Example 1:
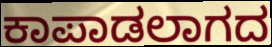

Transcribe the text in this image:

ಕಾಪಾಡಲಾಗದ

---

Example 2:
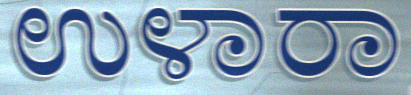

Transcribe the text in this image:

ಉಳಾರಾ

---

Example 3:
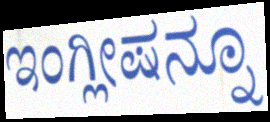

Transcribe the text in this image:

ಇಂಗ್ಲೀಷನ್ನೂ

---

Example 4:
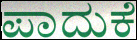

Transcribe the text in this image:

ಪಾದುಕೆ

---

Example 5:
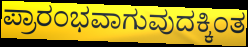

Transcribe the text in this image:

ಪ್ರಾರಂಭವಾಗುವುದಕ್ಕಿಂತ